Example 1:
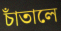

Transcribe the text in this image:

চাঁতালে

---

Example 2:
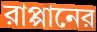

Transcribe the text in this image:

রাপ্পানের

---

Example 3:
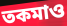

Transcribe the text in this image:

তকমাও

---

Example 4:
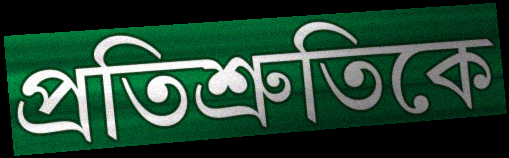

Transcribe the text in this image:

প্রতিশ্রুতিকে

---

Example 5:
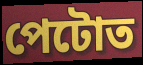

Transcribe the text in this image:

পেটোত